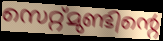
സെറ്റ്മുണ്ടിന്റെ